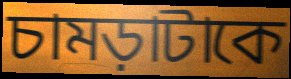
চামড়াটাকে